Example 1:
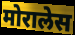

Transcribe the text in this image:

मोरालेस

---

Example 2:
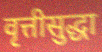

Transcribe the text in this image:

वृत्तीसुद्धा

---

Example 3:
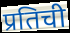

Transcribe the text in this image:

प्रतिची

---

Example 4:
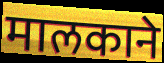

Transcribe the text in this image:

मालकाने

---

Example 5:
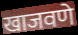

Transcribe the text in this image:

खाजवणे